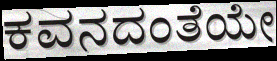
ಕವನದಂತೆಯೇ